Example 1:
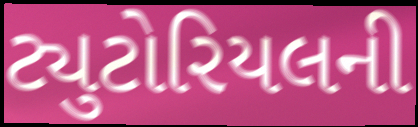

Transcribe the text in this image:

ટ્યુટોરિયલની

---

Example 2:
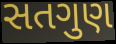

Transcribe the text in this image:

સતગુણ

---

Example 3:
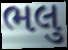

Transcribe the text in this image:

ભલુ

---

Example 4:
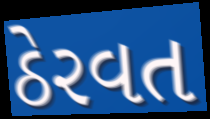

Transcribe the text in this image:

ઠેરવત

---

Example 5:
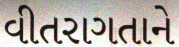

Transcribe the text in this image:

વીતરાગતાને